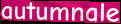
autumnale